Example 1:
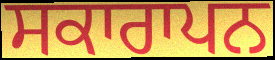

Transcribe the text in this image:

ਸਕਾਰਾਪਨ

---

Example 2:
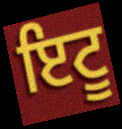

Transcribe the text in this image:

ਇਟੂ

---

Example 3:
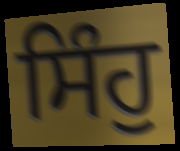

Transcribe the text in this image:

ਸਿੰਹੁ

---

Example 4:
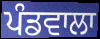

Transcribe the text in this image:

ਪੰਡਵਾਲਾ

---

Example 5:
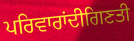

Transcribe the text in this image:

ਪਰਿਵਾਰਾਂਦੀਗਿਣਤੀ